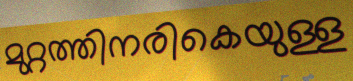
മുറ്റത്തിനരികെയുള്ള